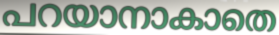
പറയാനാകാതെ